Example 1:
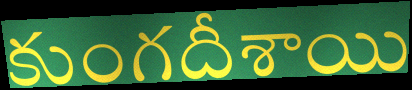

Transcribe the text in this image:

కుంగదీశాయి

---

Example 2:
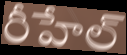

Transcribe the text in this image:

రీహేల్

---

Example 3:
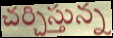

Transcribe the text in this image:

చర్చిస్తున్న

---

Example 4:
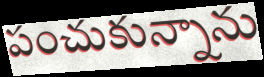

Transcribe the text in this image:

పంచుకున్నాను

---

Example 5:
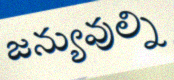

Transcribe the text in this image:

జన్యువుల్ని